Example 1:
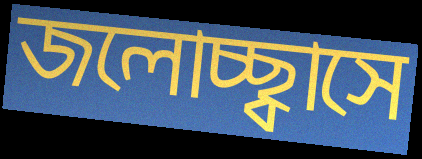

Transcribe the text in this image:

জলোচ্ছ্বাসে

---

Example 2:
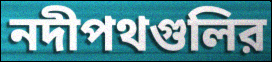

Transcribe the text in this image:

নদীপথগুলির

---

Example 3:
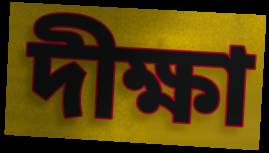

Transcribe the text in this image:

দীক্ষা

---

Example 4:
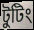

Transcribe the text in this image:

টুটিং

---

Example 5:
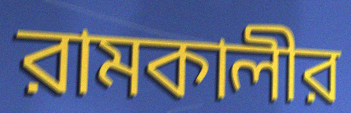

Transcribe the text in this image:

রামকালীর